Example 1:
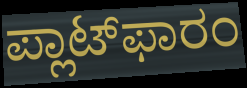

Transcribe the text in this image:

ಪ್ಲಾಟ್‌ಫಾರಂ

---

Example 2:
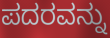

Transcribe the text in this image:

ಪದರವನ್ನು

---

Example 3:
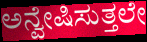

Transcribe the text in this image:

ಅನ್ವೇಷಿಸುತ್ತಲೇ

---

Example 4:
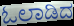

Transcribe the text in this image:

ಓಲಾಡಿದ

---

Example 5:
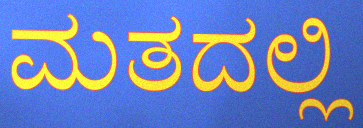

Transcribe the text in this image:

ಮತದಲ್ಲಿ